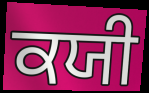
ਕਯੀ